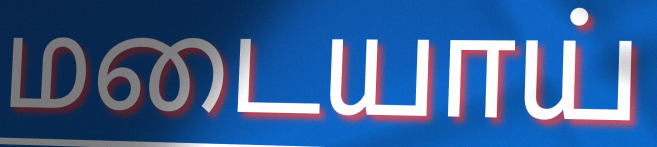
மடையாய்